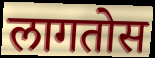
लागतोस